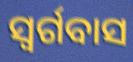
ସ୍ଵର୍ଗବାସ